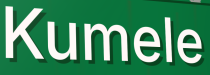
Kumele